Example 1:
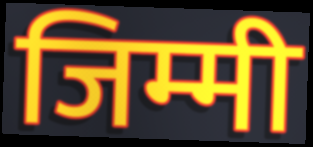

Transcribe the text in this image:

जिम्मी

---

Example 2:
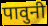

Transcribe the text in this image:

पावुनी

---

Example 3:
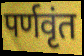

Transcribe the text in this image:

पर्णवृंत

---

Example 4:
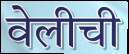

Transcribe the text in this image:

वेलीची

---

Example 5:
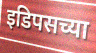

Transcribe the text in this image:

इडिपसच्या